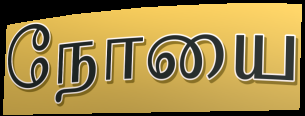
நோயை